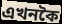
এখনকৈ